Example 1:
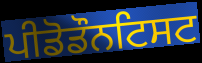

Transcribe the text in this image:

ਪੀਡੋਡੌਨਟਿਸਟ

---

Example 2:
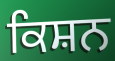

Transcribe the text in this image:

ਕਿਸ਼ਨ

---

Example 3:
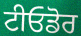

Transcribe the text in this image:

ਟੀਓਡੋਰ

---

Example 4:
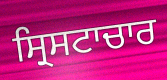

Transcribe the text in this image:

ਸ੍ਰਿਸਟਾਚਾਰ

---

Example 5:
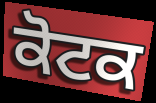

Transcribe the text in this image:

ਕੋਟਕ